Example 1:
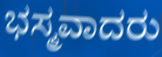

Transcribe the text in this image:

ಭಸ್ಮವಾದರು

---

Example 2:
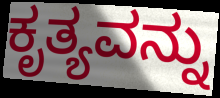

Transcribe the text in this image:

ಕೃತ್ಯವನ್ನು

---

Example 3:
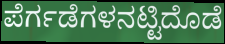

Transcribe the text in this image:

ಪೆರ್ಗಡೆಗಳನಟ್ಟಿದೊಡೆ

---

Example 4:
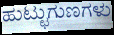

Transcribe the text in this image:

ಹುಟ್ಟುಗುಣಗಳು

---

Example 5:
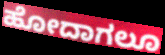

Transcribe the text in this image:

ಹೋದಾಗಲೂ